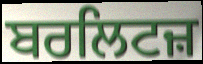
ਬਰਲਿਟਜ਼